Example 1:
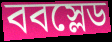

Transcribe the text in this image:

ববস্লেড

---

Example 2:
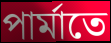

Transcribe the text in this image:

পার্মাতে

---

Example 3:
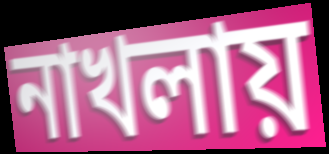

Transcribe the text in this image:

নাখলায়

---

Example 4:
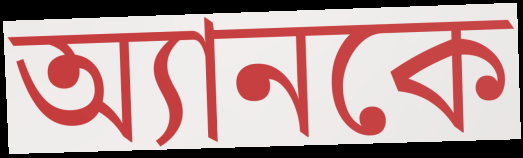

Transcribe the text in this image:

অ্যানকে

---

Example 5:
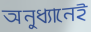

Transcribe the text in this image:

অনুধ্যানেই